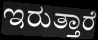
ಇರುತ್ತಾರೆ